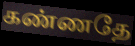
கண்ணதே